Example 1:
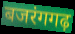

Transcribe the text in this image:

बजरंगगढ़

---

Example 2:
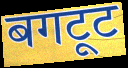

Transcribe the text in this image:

बगटूट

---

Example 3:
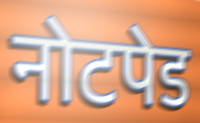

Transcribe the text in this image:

नोटपेड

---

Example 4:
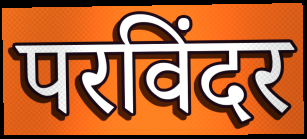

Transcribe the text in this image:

परविंदर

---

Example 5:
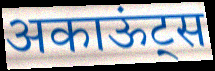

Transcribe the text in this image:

अकाऊंट्स